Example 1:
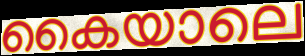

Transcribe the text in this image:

കൈയാലെ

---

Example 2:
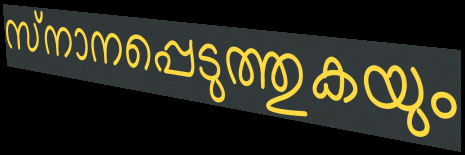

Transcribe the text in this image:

സ്‌നാനപ്പെടുത്തുകയും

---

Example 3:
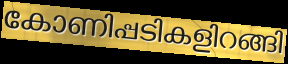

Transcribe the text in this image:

കോണിപ്പടികളിറങ്ങി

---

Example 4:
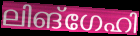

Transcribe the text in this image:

ലിങ്ഗേഹി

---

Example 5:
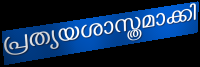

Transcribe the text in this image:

പ്രത്യയശാസ്ത്രമാക്കി